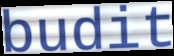
budit